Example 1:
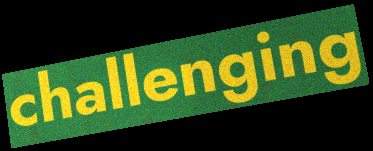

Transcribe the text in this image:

challenging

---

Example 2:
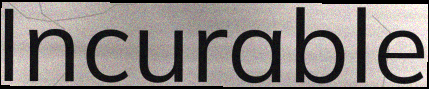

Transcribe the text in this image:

Incurable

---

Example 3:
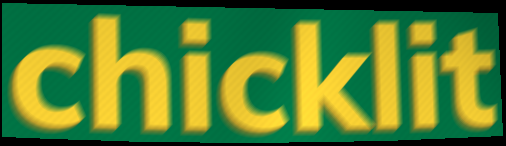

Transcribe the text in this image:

chicklit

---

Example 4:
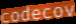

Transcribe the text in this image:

codecov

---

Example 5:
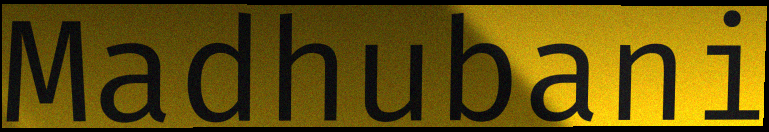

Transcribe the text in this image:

Madhubani